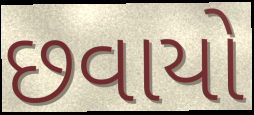
છવાયો